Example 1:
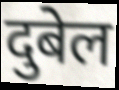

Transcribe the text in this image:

दुबेल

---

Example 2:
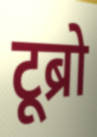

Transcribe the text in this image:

टूब्रो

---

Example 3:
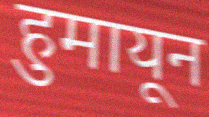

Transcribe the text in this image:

हुमायून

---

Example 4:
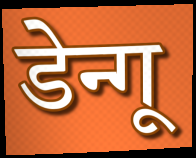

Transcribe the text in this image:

डेन्गू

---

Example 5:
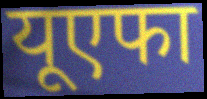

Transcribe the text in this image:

यूएफा